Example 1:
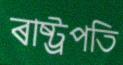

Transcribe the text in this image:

ৰাষ্ট্ৰপতি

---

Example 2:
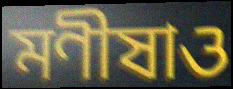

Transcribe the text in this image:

মণীষাও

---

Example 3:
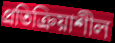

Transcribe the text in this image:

প্ৰতিক্ৰিয়াশীল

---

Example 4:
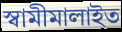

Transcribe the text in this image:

স্বামীমালাইত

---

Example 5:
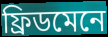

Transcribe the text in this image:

ফ্ৰিডমেনে